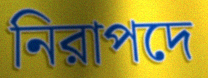
নিরাপদে